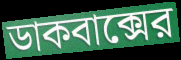
ডাকবাক্সের